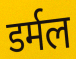
डर्मल